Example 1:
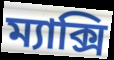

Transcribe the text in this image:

ম্যাক্সি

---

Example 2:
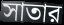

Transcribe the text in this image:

সাতার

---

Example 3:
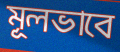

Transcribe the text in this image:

মূলভাবে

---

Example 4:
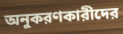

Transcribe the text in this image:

অনুকরণকারীদের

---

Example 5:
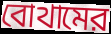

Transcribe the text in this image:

বোথামের